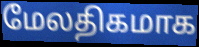
மேலதிகமாக